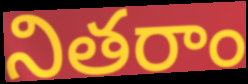
నితరాం